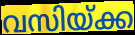
വസിയ്ക്ക